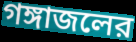
গঙ্গাজলের